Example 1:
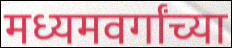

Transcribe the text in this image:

मध्यमवर्गांच्या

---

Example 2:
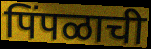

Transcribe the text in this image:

पिंपळाची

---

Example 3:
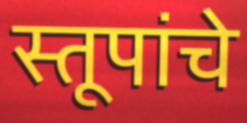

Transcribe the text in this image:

स्तूपांचे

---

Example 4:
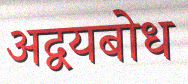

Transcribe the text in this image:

अद्वयबोध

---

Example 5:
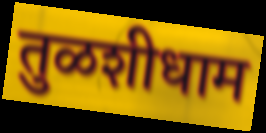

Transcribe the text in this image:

तुळशीधाम